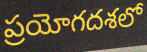
ప్రయోగదశలో